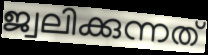
ജ്വലിക്കുന്നത്